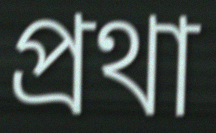
প্ৰথা